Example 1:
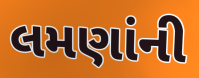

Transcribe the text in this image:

લમણાંની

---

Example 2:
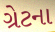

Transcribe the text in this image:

ગ્રેટના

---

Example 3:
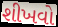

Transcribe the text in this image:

શીખવો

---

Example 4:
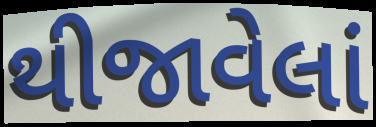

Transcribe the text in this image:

થીજાવેલાં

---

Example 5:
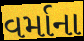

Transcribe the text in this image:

વર્માના